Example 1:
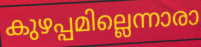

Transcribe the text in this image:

കുഴപ്പമില്ലെന്നാരാ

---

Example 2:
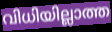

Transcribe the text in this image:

വിധിയില്ലാത്ത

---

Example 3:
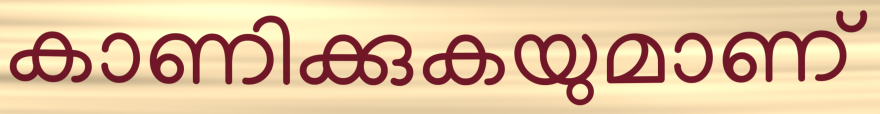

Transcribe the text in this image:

കാണിക്കുകയുമാണ്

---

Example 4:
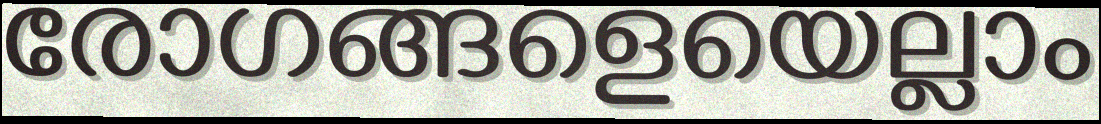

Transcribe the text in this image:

രോഗങ്ങളെയെല്ലാം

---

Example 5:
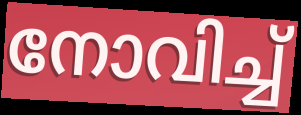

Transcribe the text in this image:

നോവിച്ച്